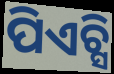
ପିଏଚ୍ସି